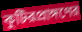
কুটিরপ্রাঙ্গণের